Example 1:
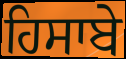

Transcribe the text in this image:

ਹਿਸਾਬੇ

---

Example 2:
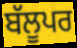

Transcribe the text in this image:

ਬੱਲੂਪਰ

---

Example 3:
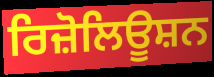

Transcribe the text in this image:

ਰਿਜ਼ੋਲਿਊਸ਼ਨ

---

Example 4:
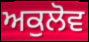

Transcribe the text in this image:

ਅਕੁਲੋਵ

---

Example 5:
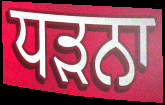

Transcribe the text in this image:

ਧੜਨਾ